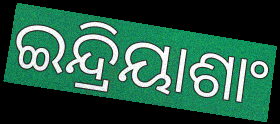
ଇନ୍ଦ୍ରିୟାଶାଂ